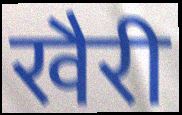
खैरी